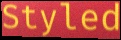
Styled